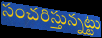
సంచరిస్తున్నట్టు